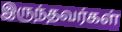
இருந்தவர்கள்